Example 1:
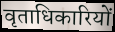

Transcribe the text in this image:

वृताधिकारियों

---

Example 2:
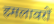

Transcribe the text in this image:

हमलावरों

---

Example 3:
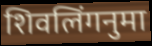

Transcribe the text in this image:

शिवलिंगनुमा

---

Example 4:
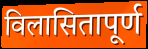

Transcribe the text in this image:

विलासितापूर्ण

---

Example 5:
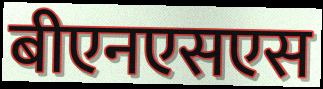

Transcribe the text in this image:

बीएनएसएस